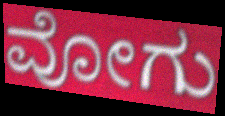
ವೋಗು